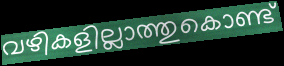
വഴികളില്ലാത്തുകൊണ്ട്